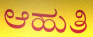
ಆಹುತಿ